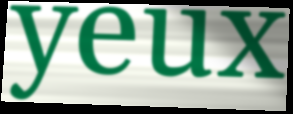
yeux